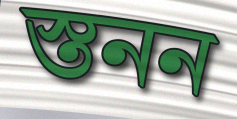
স্তনন